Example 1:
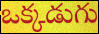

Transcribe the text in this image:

ఒక్కడుగు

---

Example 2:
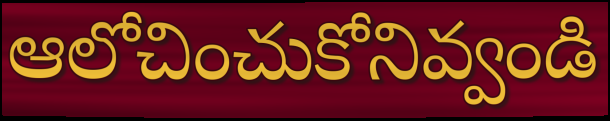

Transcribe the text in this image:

ఆలోచించుకోనివ్వండి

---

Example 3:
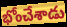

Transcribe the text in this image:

భోంచేశాడు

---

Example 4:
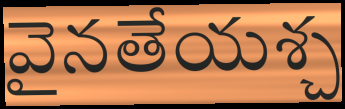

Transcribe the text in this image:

వైనతేయశ్చ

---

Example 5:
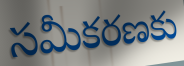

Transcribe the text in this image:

సమీకరణకు